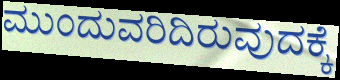
ಮುಂದುವರಿದಿರುವುದಕ್ಕೆ